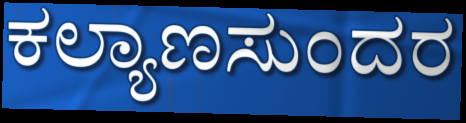
ಕಲ್ಯಾಣಸುಂದರ